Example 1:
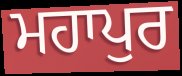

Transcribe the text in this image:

ਮਹਾਪੁਰ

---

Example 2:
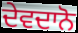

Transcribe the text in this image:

ਦੇਵਦਾਨੋ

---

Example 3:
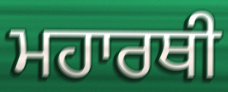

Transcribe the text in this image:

ਮਹਾਰਥੀ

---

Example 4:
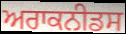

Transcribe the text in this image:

ਅਰਾਕਨੀਡਸ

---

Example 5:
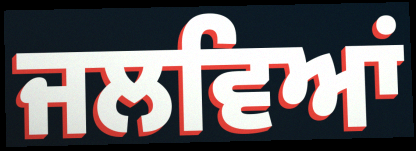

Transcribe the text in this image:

ਜਲਵਿਆਂ